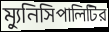
ম্যুনিসিপালিটির